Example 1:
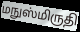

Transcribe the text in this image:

மநுஸ்மிருதி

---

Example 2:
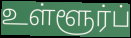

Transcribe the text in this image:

உள்ளூர்ப்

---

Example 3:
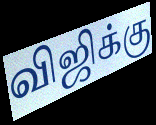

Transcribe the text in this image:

விஜிக்கு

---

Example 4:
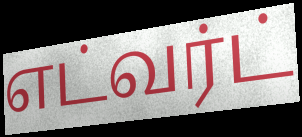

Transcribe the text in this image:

எட்வர்ட்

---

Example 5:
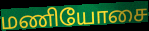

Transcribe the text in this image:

மணியோசை